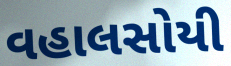
વહાલસોયી